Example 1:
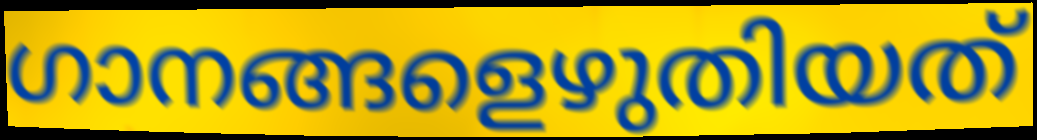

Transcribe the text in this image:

ഗാനങ്ങളെഴുതിയത്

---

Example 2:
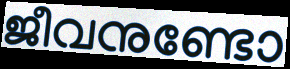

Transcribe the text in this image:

ജീവനുണ്ടോ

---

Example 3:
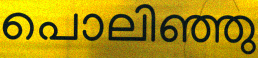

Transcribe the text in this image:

പൊലിഞ്ഞു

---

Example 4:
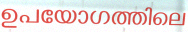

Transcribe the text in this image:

ഉപയോഗത്തിലെ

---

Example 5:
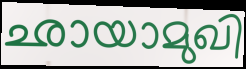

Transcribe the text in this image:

ഛായാമുഖി